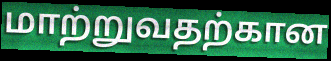
மாற்றுவதற்கான